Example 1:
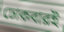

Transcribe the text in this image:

ঢোকবারই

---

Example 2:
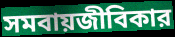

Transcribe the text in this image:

সমবায়জীবিকার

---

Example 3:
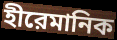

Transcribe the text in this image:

হীরেমানিক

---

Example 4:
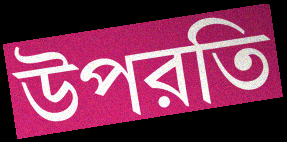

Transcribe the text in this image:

উপরতি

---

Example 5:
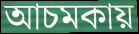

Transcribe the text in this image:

আচমকায়